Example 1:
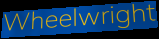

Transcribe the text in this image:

Wheelwright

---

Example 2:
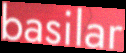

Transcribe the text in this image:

basilar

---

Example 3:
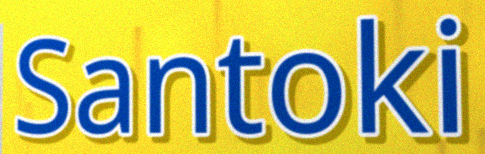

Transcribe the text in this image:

Santoki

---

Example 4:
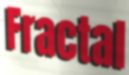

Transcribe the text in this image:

Fractal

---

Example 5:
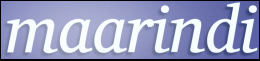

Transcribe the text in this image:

maarindi